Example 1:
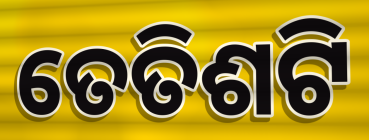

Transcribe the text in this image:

ତେତିଶଟି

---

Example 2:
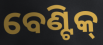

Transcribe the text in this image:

ବେଣ୍ଟିକ୍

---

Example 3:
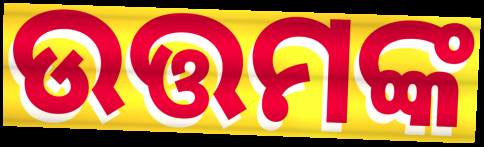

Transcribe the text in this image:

ଉତ୍ତମଙ୍କ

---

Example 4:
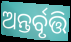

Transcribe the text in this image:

ଅନ୍ତର୍ବୃତ୍ତି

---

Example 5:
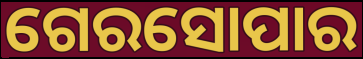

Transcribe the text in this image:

ଗେରସୋପାର